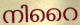
നിറൈ